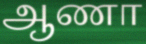
ஆணா